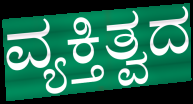
ವ್ಯಕ್ತಿತ್ವದ